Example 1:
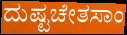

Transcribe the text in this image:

ದುಷ್ಟಚೇತಸಾಂ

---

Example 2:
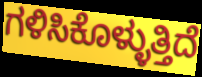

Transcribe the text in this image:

ಗಳಿಸಿಕೊಳ್ಳುತ್ತಿದೆ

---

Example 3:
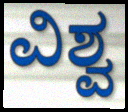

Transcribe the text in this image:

ವಿಶ್ವ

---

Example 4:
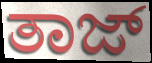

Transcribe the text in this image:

ತಾಜ್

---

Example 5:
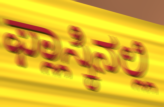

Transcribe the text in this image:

ಫ್ಲಾಸ್ಕಿನಲ್ಲಿ